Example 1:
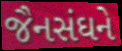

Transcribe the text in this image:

જૈનસંઘને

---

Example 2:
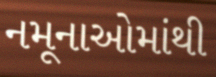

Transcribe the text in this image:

નમૂનાઓમાંથી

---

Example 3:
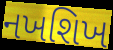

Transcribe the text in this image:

નખશિખ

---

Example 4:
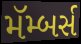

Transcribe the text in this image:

મૅમ્બર્સ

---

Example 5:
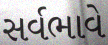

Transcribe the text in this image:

સર્વભાવે